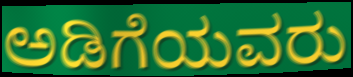
ಅಡಿಗೆಯವರು